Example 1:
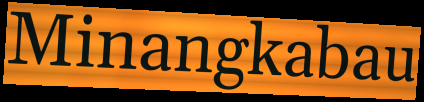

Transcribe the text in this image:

Minangkabau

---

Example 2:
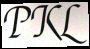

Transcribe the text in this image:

PKL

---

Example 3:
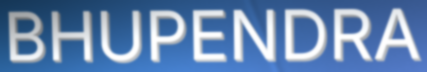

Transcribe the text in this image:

BHUPENDRA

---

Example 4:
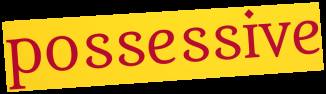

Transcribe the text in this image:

possessive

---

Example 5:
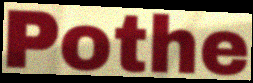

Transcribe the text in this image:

Pothe